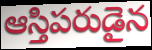
ఆస్తిపరుడైన